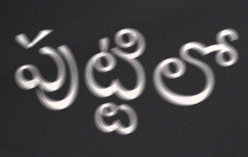
పుట్టిలో